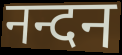
नन्‍दन